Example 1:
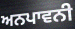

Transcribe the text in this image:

ਅਨਪਾਵਨੀ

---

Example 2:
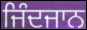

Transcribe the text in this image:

ਜਿੰਦਜਾਨ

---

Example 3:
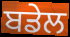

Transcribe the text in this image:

ਬਡੇਲ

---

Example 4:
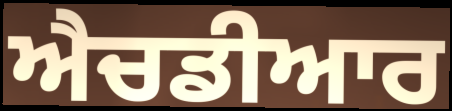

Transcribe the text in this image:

ਐਚਡੀਆਰ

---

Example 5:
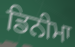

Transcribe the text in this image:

ਡਿਨੀਮਾ